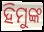
ହିମୁଙ୍କ